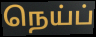
நெய்ப்